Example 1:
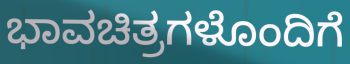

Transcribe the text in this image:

ಭಾವಚಿತ್ರಗಳೊಂದಿಗೆ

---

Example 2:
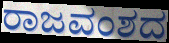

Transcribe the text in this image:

ರಾಜವಂಶದ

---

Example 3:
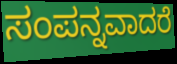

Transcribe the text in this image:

ಸಂಪನ್ನವಾದರೆ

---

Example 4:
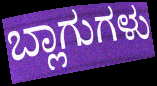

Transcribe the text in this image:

ಬ್ಲಾಗುಗಳು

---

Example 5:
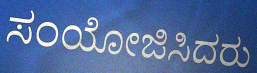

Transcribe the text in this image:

ಸಂಯೋಜಿಸಿದರು